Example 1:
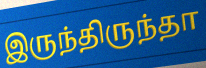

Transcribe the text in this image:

இருந்திருந்தா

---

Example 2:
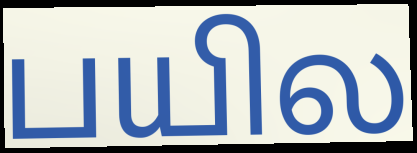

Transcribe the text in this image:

பயில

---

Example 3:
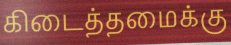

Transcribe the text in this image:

கிடைத்தமைக்கு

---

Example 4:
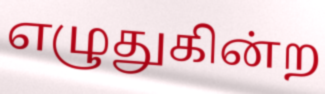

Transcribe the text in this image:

எழுதுகின்ற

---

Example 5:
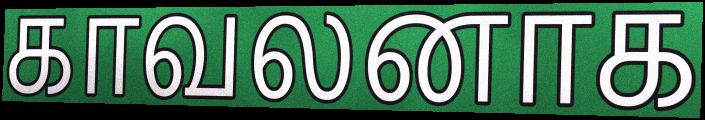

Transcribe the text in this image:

காவலனாக